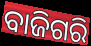
ବାଜିଗରି